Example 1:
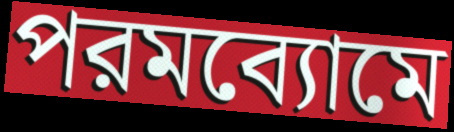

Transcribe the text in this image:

পরমব্যোমে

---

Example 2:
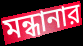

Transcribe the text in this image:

মন্ধানার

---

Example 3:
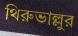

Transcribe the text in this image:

থিরুভাল্লুর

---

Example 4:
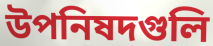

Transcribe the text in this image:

উপনিষদগুলি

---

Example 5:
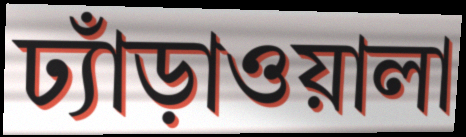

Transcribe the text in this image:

ঢ্যাঁড়াওয়ালা